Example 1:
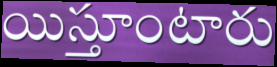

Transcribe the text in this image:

యిస్తూంటారు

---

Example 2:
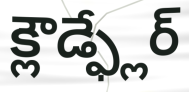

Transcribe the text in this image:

క్లౌడ్ఫ్లేర్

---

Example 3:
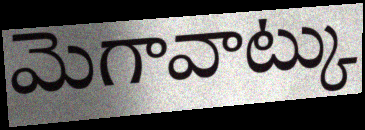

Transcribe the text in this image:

మెగావాట్కు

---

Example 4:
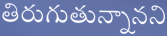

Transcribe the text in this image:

తిరుగుతున్నానని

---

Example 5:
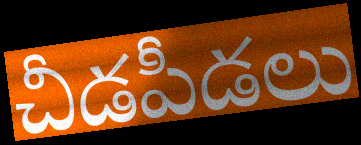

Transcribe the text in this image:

చీడపీడలు